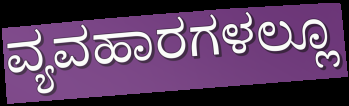
ವ್ಯವಹಾರಗಳಲ್ಲೂ